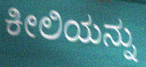
ಕೀಲಿಯನ್ನು